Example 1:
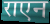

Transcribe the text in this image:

राएन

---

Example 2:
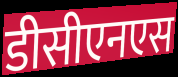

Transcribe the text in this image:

डीसीएनएस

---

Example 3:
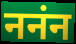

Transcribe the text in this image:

ननंन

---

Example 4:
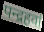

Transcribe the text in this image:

पन्द्रहवां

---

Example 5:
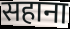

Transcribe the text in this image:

सहाना